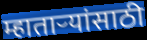
म्हाताऱ्यांसाठी